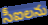
సీఐలను